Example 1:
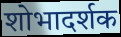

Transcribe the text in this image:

शोभादर्शक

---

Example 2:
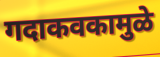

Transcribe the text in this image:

गदाकवकामुळे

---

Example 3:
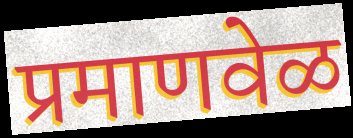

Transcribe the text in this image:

प्रमाणवेळ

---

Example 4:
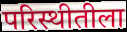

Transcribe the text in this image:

परिस्थीतीला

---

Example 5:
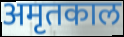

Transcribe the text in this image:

अमृतकाल